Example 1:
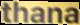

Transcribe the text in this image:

thana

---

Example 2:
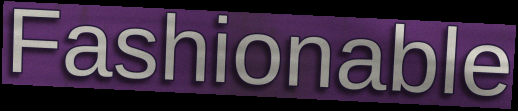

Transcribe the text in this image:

Fashionable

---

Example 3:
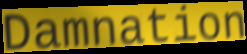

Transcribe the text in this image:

Damnation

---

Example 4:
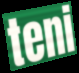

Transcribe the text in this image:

teni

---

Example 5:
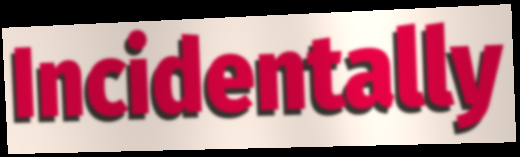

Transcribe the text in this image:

Incidentally